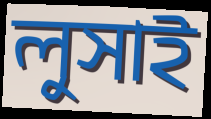
লুসাই